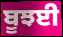
ਬੂਝਈ